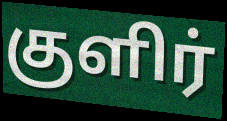
குளிர்